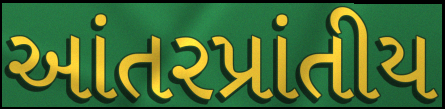
આંતરપ્રાંતીય